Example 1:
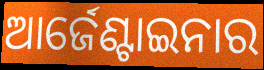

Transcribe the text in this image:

ଆର୍ଜେଣ୍ଟାଇନାର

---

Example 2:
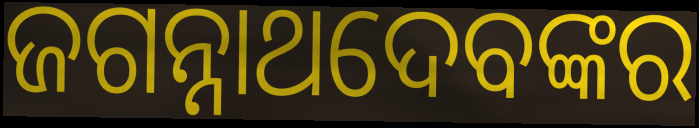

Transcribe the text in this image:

ଜଗନ୍ନାଥଦେବଙ୍କର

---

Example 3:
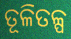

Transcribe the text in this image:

ତୂଳିତଳ୍ପ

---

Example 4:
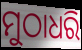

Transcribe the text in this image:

ମୁଠାଧରି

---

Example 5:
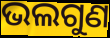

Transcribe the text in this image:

ଭଲଗୁଣ